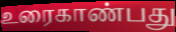
உரைகாண்பது